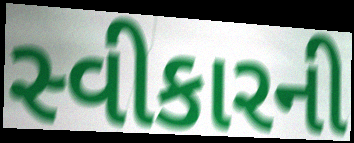
સ્વીકારની